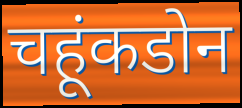
चहूंकडोन